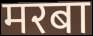
मरबा